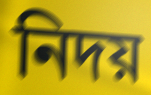
নিদয়